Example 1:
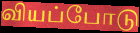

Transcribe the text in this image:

வியப்போடு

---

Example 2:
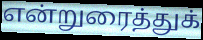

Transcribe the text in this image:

என்றுரைத்துக்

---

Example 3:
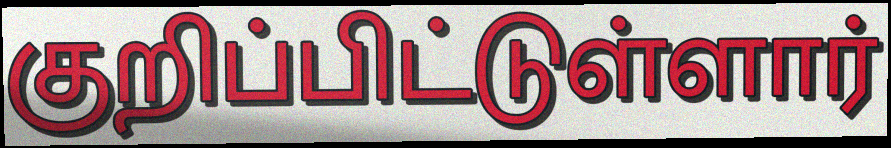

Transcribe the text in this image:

குறிப்பிட்டுள்ளார்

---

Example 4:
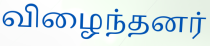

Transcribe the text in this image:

விழைந்தனர்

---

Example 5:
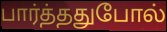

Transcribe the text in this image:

பார்த்ததுபோல்